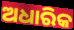
ଅଧାରିକ